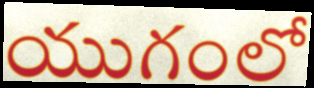
యుగంలో